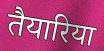
तैयारिया